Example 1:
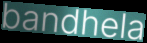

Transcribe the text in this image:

bandhela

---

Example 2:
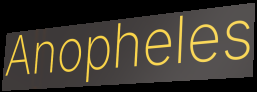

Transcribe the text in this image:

Anopheles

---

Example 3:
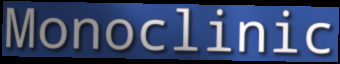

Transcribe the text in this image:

Monoclinic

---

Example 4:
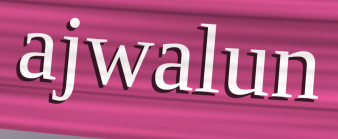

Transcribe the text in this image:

ajwalun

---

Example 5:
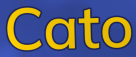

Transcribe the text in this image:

Cato